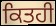
ਕਿਤਹੀ